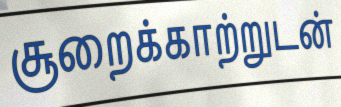
சூறைக்காற்றுடன்